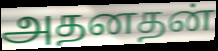
அதனதன்